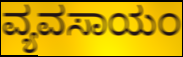
ವ್ಯವಸಾಯಂ